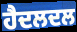
ਹੈਦਲਦਲ